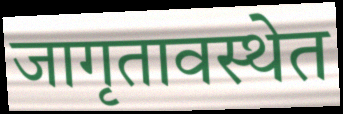
जागृतावस्थेत